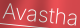
Avastha